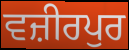
ਵਜ਼ੀਰਪੁਰ